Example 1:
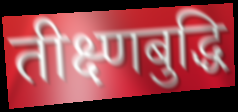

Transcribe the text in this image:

तीक्ष्णबुद्धि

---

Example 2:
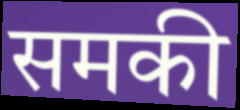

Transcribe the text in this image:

समकी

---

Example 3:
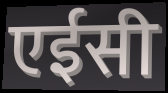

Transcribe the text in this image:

एईसी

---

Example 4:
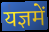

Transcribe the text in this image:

यज्ञमें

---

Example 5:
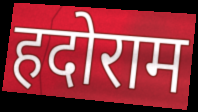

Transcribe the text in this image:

हदोराम